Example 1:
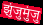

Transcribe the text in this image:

झुंजुमुंजु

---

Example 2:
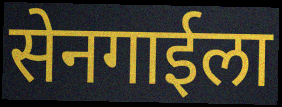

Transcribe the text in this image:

सेनगाईला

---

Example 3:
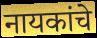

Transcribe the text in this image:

नायकांचे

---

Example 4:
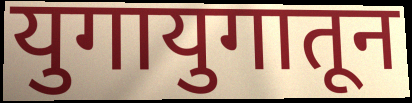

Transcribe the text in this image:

युगायुगातून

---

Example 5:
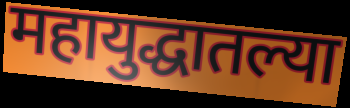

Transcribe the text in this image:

महायुद्धातल्या